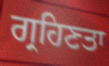
ਗ੍ਰਹਿਣਤਾ